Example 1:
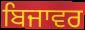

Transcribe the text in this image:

ਬਿਜਾਵਰ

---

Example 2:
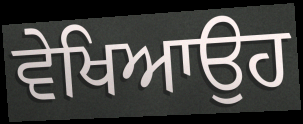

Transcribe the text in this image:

ਵੇਖਿਆਉਹ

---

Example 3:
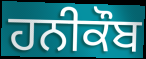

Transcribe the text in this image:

ਹਨੀਕੌਬ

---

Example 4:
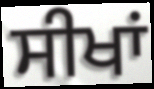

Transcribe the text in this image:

ਸੀਖਾਂ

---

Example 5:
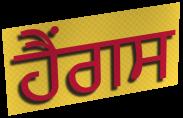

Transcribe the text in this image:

ਹੈਂਗਸ